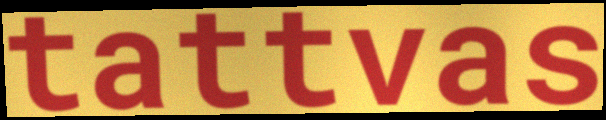
tattvas